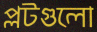
প্লটগুলো